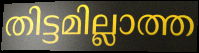
തിട്ടമില്ലാത്ത